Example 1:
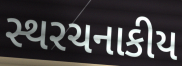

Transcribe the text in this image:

સ્થરચનાકીય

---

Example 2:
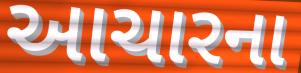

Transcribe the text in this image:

આચારના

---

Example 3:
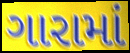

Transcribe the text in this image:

ગારામાં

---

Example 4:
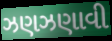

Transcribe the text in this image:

ઝણઝણાવી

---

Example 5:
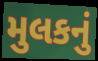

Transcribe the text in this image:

મુલકનું